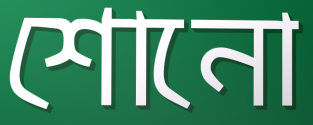
শোনো